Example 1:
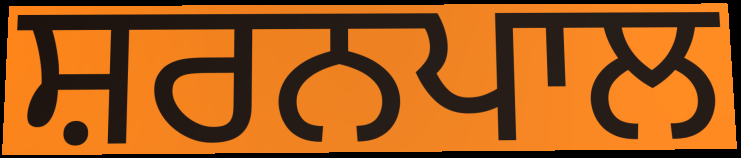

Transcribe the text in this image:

ਸ਼ਰਨਪਾਲ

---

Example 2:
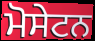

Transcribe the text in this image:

ਮੋਸੇਟਨ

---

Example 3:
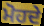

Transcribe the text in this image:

ਮੋਹਦੇ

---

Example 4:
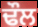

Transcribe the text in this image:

ਢੌਲ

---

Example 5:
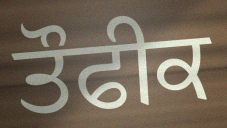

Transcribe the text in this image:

ਤੌਫੀਕ